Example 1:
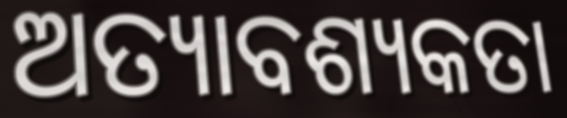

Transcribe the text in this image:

ଅତ୍ୟାବଶ୍ୟକତା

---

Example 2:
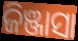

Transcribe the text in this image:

ଜିଞ୍ଜାସା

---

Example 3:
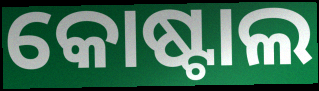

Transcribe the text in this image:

କୋଷ୍ଟାଲ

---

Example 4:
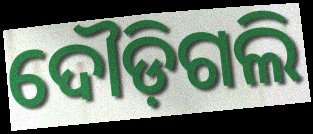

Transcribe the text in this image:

ଦୌଡ଼ିଗଲି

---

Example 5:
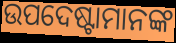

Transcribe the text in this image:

ଉପଦେଷ୍ଟାମାନଙ୍କ